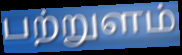
பற்றுளம்